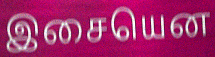
இசையென